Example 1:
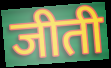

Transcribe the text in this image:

जीती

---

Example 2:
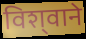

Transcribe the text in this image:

विश्वाने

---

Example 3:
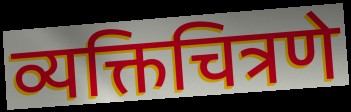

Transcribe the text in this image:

व्यक्तिचित्रणे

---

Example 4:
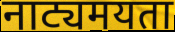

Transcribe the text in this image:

नाट्यमयता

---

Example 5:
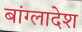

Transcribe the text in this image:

बांग्लादेश